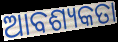
ଆବଶ୍ୟକତା